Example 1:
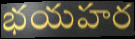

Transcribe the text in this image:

భయహర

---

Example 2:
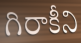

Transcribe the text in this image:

గిరాకీని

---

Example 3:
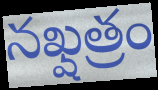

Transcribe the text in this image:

నఖ్షత్రం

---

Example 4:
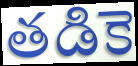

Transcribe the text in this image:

తడికె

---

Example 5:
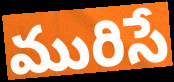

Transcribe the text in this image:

మురిసే